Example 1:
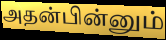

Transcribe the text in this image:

அதன்பின்னும்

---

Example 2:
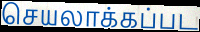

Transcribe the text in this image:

செயலாக்கப்பட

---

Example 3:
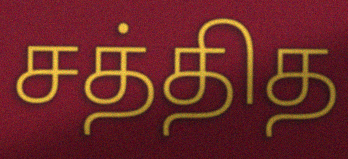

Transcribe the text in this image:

சத்தித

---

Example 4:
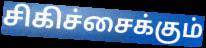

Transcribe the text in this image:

சிகிச்சைக்கும்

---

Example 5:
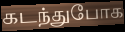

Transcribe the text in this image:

கடந்துபோக